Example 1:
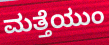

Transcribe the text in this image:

ಮತ್ತೆಯುಂ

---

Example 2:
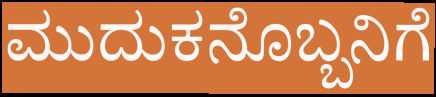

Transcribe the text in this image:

ಮುದುಕನೊಬ್ಬನಿಗೆ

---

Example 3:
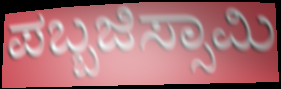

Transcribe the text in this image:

ಪಬ್ಬಜಿಸ್ಸಾಮಿ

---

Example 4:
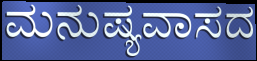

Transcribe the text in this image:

ಮನುಷ್ಯವಾಸದ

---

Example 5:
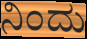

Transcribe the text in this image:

ನಿಂದು